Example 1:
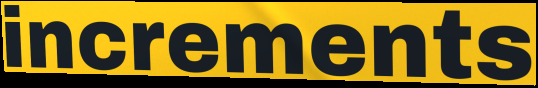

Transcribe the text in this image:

increments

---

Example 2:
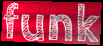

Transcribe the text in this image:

funk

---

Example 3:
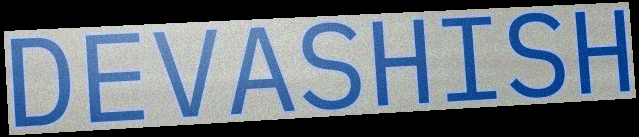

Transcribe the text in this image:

DEVASHISH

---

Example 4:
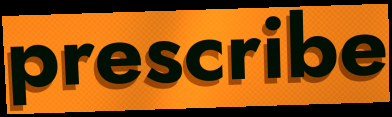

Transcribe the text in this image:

prescribe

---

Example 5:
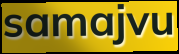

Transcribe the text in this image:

samajvu